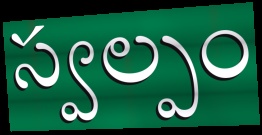
స్వల్పం